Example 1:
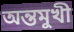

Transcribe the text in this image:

অন্তমুখী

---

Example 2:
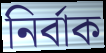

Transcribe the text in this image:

নিৰ্বাক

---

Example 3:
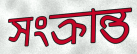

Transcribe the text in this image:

সংক্ৰান্ত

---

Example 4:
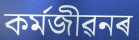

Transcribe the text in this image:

কৰ্মজীৱনৰ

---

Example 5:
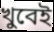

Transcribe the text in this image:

খুবেই